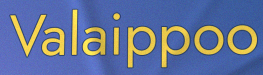
Valaippoo